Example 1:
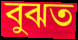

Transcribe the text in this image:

বুঝত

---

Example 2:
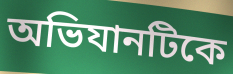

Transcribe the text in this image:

অভিযানটিকে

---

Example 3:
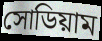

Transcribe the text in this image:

সোডিয়াম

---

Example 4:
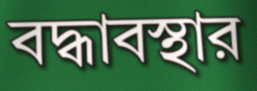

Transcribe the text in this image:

বদ্ধাবস্থার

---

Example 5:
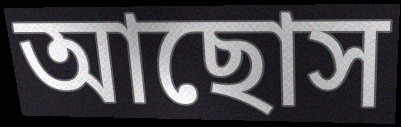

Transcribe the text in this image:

আছোস